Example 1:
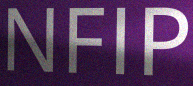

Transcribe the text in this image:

NFIP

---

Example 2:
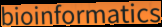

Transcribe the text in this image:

bioinformatics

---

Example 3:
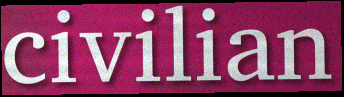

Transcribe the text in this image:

civilian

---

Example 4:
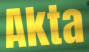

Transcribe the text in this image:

Akta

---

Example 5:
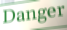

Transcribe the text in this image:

Danger